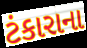
ટંકારાના